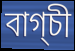
বাগ্চী